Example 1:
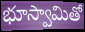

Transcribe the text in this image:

భూస్వామితో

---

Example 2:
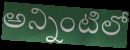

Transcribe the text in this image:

అన్నింటిలో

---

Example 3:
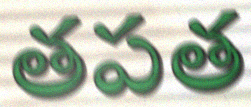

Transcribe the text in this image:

తపత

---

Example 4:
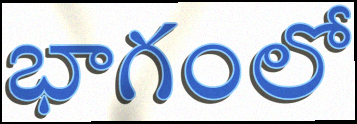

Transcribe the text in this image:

భాగంలో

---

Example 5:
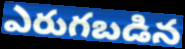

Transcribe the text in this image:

ఎరుగబడిన